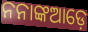
ନନାଙ୍କଆଡ଼େ